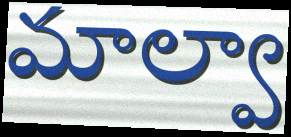
మాల్వా